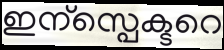
ഇന്സ്പെക്ടറെ